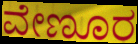
ವೇಣೂರ